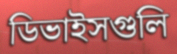
ডিভাইসগুলি